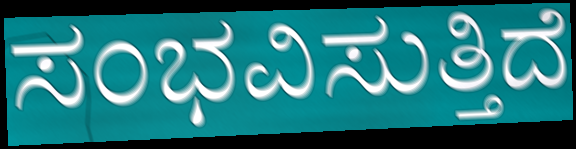
ಸಂಭವಿಸುತ್ತಿದೆ